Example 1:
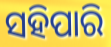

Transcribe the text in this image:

ସହିପାରି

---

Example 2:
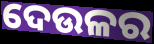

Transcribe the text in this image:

ଦେଉଳର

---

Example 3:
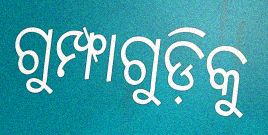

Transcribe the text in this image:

ଗୁମ୍ଫାଗୁଡ଼ିକୁ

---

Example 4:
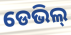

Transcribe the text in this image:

ଡେଭିଲ୍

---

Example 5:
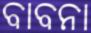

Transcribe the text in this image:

ବାବନା